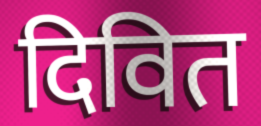
दिवित